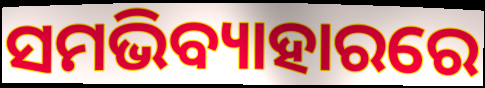
ସମଭିବ୍ୟାହାରରେ